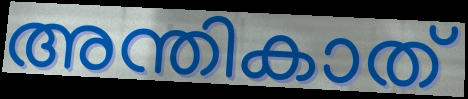
അന്തികാത്